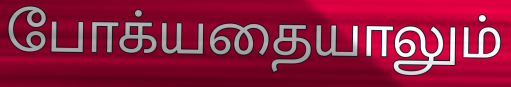
போக்யதையாலும்